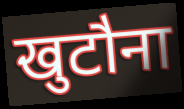
खुटौना